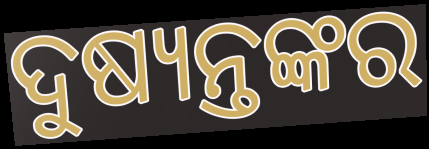
ଦୁଷ୍ୟନ୍ତଙ୍କର